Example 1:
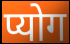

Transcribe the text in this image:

प्योग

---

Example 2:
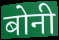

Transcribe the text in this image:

बोनी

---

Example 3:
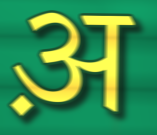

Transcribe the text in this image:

अ़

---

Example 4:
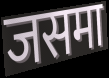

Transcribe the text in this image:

जसमा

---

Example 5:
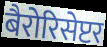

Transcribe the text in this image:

बैरोरिसेप्टर